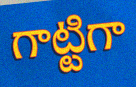
గాట్టిగా